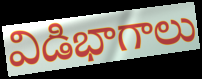
విడిభాగాలు